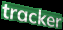
tracker